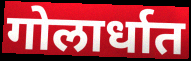
गोलार्धात